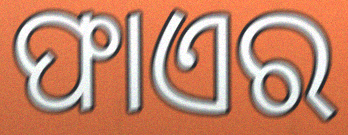
ଫାଏର